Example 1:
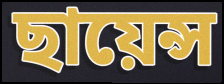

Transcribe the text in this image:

ছায়েন্স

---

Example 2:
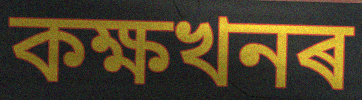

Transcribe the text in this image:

কক্ষখনৰ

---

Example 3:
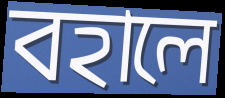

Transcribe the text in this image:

বহালে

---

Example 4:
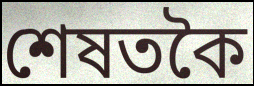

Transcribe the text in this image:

শেষতকৈ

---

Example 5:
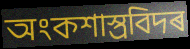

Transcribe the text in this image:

অংকশাস্ত্ৰবিদৰ